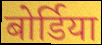
बोर्डिया